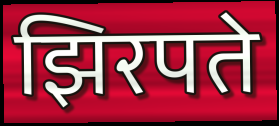
झिरपते